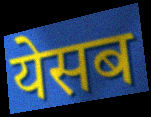
येसब